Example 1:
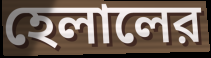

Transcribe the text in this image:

হেলালের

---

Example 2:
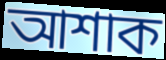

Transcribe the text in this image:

আশাক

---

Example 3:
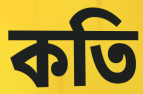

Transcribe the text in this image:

কতি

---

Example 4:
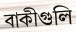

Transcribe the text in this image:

বাকীগুলি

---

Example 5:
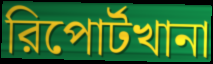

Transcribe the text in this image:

রিপোর্টখানা